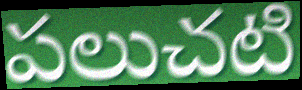
పలుచటి